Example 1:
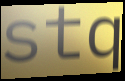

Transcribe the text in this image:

stq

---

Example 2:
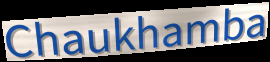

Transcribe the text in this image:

Chaukhamba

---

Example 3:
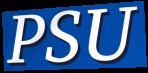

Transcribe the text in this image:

PSU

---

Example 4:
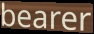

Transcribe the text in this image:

bearer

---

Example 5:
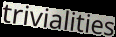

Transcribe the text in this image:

trivialities